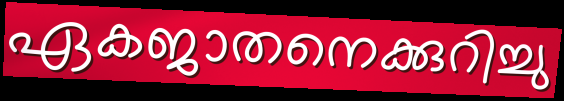
ഏകജാതനെക്കുറിച്ചു